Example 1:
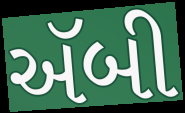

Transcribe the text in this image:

ઍબી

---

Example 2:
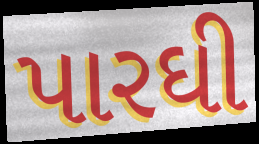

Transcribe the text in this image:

પારઘી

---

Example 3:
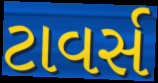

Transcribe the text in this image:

ટાવર્સ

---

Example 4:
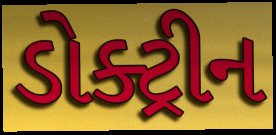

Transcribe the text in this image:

ડોક્ટ્રીન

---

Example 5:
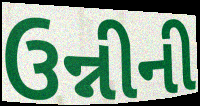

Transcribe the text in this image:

ઉન્નીની